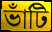
ভাঁটি